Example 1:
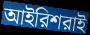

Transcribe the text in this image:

আইরিশরাই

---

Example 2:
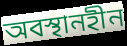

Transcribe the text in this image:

অবস্থানহীন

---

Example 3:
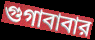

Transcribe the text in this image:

গুগাবাবার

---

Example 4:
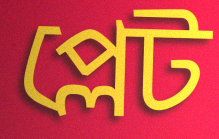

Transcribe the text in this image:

প্লেট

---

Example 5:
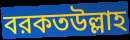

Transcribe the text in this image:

বরকতউল্লাহ